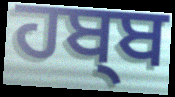
ਹਬ੍ਬ